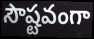
సౌష్టవంగా